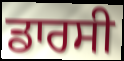
ਡਾਰਸੀ